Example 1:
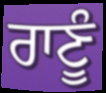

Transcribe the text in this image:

ਰਾਣੂੰ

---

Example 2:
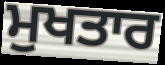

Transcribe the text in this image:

ਮੁਖਤਾਰ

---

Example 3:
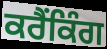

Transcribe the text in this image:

ਕਰੈਂਕਿੰਗ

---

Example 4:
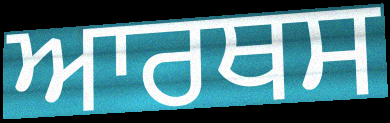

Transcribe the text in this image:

ਆਰਥਸ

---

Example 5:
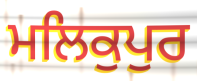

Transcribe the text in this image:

ਮਲਿਕੁਪੁਰ